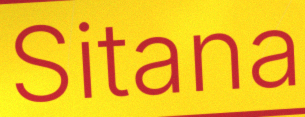
Sitana